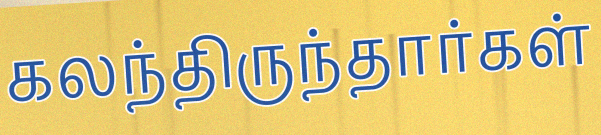
கலந்திருந்தார்கள்